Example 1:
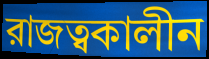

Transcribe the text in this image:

রাজত্বকালীন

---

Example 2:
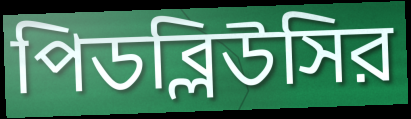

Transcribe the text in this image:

পিডব্লিউসির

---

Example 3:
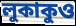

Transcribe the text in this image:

লুকাকুও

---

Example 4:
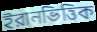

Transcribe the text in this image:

ইরানভিত্তিক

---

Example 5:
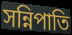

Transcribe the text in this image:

সন্নিপাতি